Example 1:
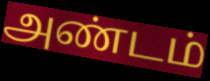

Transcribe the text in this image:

அண்டம்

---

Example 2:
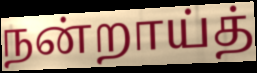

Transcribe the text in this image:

நன்றாய்த்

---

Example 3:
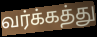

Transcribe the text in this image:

வர்க்கத்து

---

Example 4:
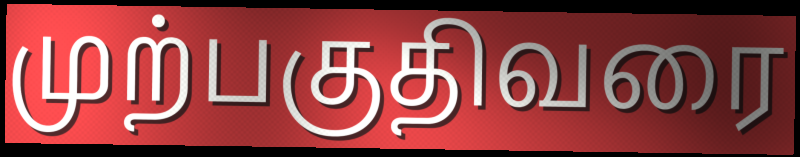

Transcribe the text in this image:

முற்பகுதிவரை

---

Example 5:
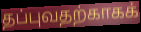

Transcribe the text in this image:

தப்புவதற்காகக்